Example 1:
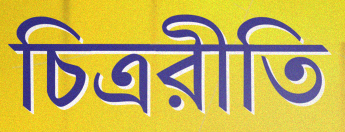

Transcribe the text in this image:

চিত্ররীতি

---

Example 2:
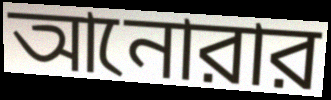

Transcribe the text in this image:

আনোরার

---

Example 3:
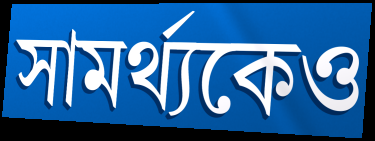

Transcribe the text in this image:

সামর্থ্যকেও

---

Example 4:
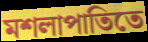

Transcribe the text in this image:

মশলাপাতিতে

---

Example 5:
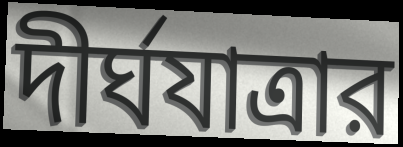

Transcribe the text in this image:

দীর্ঘযাত্রার